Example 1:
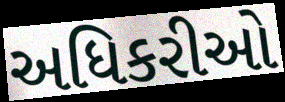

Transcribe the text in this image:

અધિકરીઓ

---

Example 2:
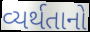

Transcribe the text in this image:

વ્યર્થતાનો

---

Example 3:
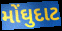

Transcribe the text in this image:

મોંઘુદાટ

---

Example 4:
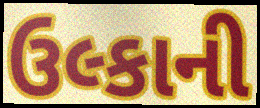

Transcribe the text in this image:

ઉલ્કાની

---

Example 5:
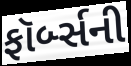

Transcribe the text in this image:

ફૉર્બ્સની